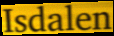
Isdalen